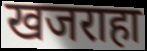
खजराहा